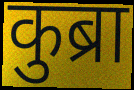
कुब्रा